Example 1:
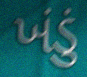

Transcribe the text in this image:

ખંડું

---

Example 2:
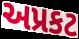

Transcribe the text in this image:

અપ્રકટ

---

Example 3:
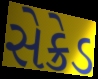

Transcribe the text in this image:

સેક્રેડ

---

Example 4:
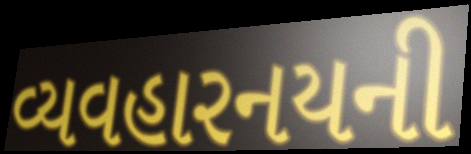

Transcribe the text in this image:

વ્યવહારનયની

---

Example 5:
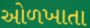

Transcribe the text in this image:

ઓળખાતા